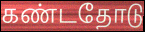
கண்டதோடு